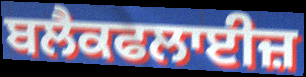
ਬਲੈਕਫਲਾਈਜ਼